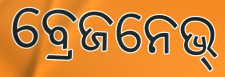
ବ୍ରେଜନେଭ୍